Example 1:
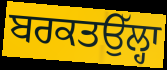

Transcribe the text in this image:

ਬਰਕਤਉੱਲ੍ਹਾ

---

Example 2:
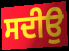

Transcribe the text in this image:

ਸਦੀਉ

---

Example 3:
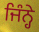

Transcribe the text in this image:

ਜਿੰਨ੍ਹੇ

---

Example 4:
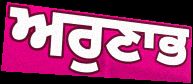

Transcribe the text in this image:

ਅਰੁਣਾਭ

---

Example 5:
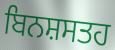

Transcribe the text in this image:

ਬਿਨਸ਼ਸਤਹ